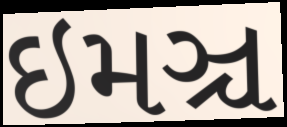
ઇમઞ્ચ